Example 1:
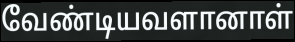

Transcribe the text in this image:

வேண்டியவளானாள்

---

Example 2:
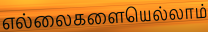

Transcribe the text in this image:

எல்லைகளையெல்லாம்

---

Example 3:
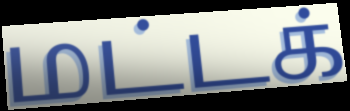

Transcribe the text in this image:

மட்டக்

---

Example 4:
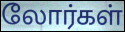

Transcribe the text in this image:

லோர்கள்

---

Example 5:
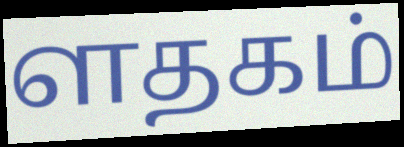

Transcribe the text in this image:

ளதகம்